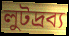
লুটদ্রব্য